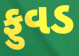
ફુવડ